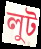
লুট